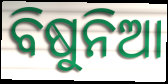
ବିଷୁନିଆ